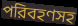
পরিবহণসহ